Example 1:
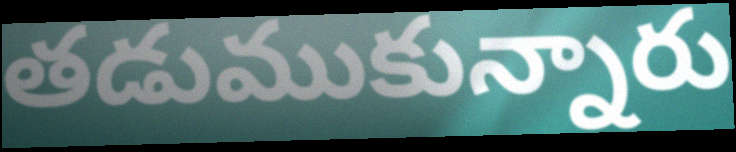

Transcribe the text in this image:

తడుముకున్నారు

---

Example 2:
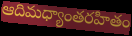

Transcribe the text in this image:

ఆదిమధ్యాంతరహితం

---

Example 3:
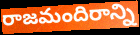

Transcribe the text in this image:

రాజమందిరాన్ని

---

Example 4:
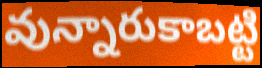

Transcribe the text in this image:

వున్నారుకాబట్టి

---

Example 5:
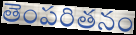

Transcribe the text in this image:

తెంపరితనం